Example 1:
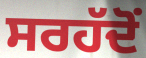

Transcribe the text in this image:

ਸਰਹੱਦੋਂ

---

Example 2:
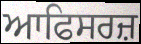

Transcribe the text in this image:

ਆਫਿਸਰਜ਼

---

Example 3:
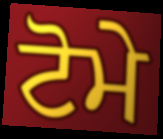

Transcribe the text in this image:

ਟੋਮੇ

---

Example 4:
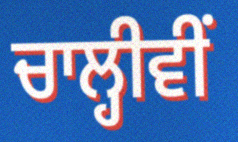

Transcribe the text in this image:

ਚਾਲ੍ਹੀਵੀਂ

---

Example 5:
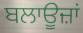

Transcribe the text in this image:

ਬਲਾਊਜ਼ਾਂ